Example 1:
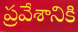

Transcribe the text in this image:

ప్రవేశానికి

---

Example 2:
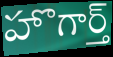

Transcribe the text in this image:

హొగార్త్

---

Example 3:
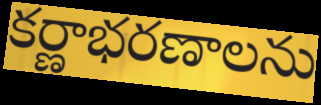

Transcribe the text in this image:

కర్ణాభరణాలను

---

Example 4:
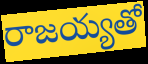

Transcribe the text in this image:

రాజయ్యతో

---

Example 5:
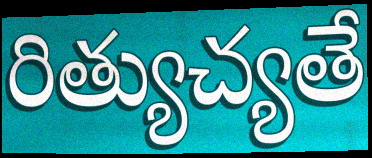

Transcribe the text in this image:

రిత్యుచ్యతే